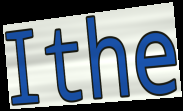
Ithe